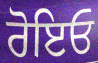
ਰੋਇਓ